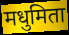
मधुमिता